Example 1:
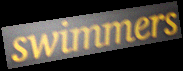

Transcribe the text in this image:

swimmers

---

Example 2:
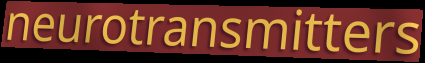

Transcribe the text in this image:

neurotransmitters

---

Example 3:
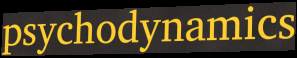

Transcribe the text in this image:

psychodynamics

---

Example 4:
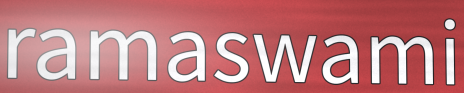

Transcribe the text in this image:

ramaswami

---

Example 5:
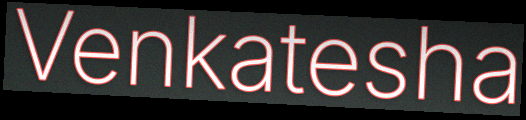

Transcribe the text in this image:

Venkatesha